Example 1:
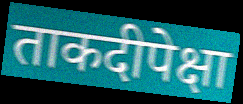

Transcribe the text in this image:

ताकदीपेक्षा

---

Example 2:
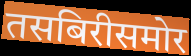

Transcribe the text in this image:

तसबिरीसमोर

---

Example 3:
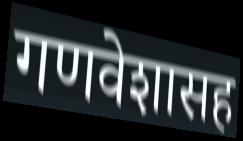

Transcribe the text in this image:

गणवेशासह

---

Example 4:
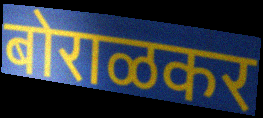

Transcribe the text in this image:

बोराळकर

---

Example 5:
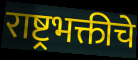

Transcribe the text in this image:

राष्ट्रभक्तीचे